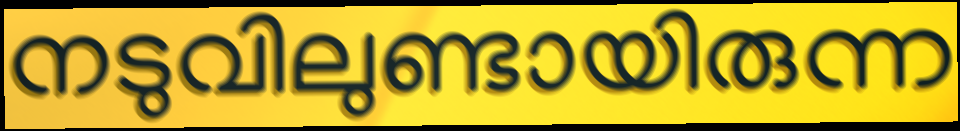
നടുവിലുണ്ടായിരുന്ന